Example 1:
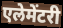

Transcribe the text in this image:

एलेमेंटरी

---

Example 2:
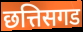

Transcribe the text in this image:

छत्तिसगड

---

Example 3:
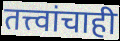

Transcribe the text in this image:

तत्त्वांचाही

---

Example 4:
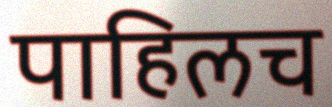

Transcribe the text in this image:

पाहिलच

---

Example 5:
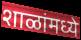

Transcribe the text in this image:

शाळांमध्ये